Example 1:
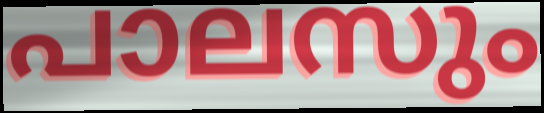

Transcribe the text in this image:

പാലസും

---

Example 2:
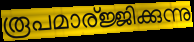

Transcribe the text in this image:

രൂപമാര്ജ്ജിക്കുന്നു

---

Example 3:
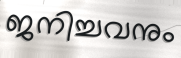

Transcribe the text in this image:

ജനിച്ചവനും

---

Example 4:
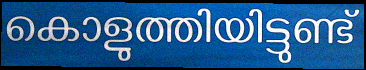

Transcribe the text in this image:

കൊളുത്തിയിട്ടുണ്ട്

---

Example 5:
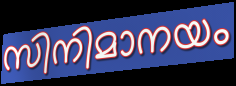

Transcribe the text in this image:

സിനിമാനയം